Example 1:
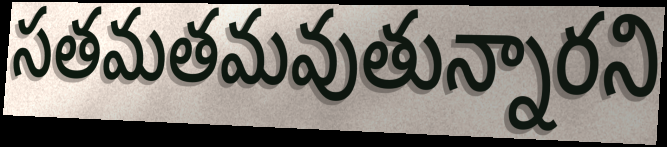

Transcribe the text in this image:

సతమతమవుతున్నారని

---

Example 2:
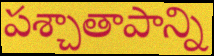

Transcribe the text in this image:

పశ్చాతాపాన్ని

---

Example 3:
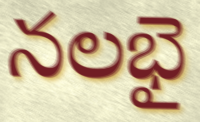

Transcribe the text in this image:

నలభై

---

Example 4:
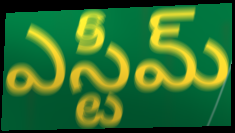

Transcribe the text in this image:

ఎస్టీమ్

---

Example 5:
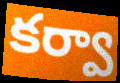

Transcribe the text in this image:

కర్వా